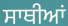
ਸਾਥੀਆਂ